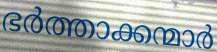
ഭർത്താക്കന്മാർ